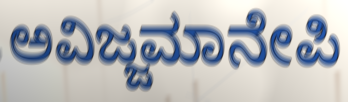
ಅವಿಜ್ಜಮಾನೇಪಿ